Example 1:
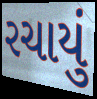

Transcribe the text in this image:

રચાયું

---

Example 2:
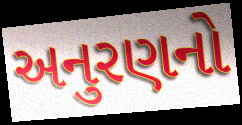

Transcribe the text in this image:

અનુરણનો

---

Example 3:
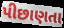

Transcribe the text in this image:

પીછાણતા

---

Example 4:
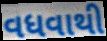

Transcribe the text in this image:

વધવાથી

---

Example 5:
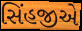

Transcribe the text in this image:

સિંહજીએ